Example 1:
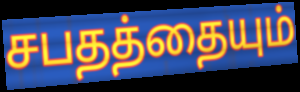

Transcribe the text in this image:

சபதத்தையும்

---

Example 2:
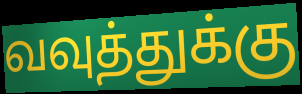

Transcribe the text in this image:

வவுத்துக்கு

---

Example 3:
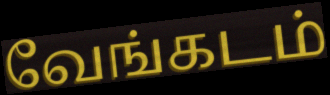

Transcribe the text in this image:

வேங்கடம்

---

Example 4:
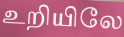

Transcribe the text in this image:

உறியிலே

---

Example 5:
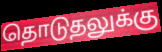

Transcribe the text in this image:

தொடுதலுக்கு